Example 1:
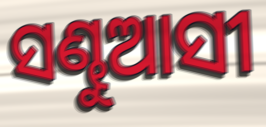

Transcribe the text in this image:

ସଣ୍ଢୁଆସୀ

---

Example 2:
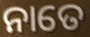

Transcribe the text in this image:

ନାତେ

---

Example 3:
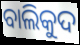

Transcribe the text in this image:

ବାଲିକୁଦ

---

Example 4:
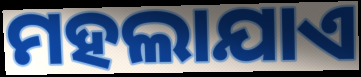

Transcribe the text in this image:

ମହଲାଯାଏ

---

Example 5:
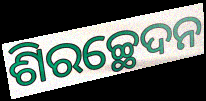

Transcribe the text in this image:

ଶିରଚ୍ଛେଦନ